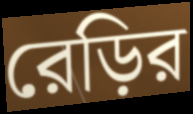
রেড়ির